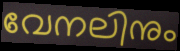
വേനലിനും